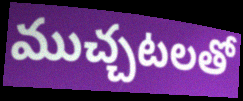
ముచ్చటలతో